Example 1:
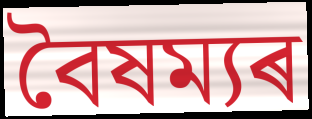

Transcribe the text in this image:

বৈষম্যৰ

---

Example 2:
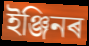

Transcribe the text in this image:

ইঞ্জিনৰ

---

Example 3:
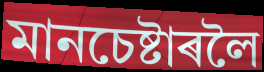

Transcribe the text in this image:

মানচেষ্টাৰলৈ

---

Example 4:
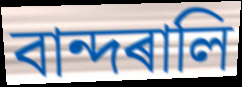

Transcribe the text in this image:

বান্দৰালি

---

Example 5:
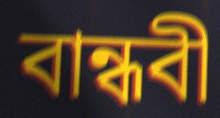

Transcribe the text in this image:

বান্ধবী